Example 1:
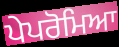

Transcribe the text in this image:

ਪੇਪਰੋਮਿਆ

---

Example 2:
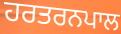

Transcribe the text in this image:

ਹਰਤਰਨਪਾਲ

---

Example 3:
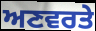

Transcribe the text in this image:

ਅਣਵਰਤੇ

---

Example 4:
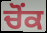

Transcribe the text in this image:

ਚੋਂਕ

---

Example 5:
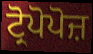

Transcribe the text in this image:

ਟ੍ਰੋਪੋਪੋਜ਼